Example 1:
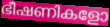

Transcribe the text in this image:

ഭീഷണികളോ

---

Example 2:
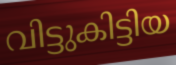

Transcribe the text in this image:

വിട്ടുകിട്ടിയ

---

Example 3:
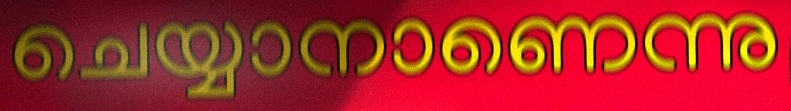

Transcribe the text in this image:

ചെയ്യാനാണെന്നു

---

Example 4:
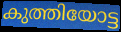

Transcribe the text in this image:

കുത്തിയോട്ട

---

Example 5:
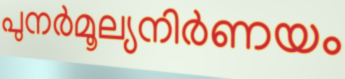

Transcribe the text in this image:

പുനർമൂല്യനിർണയം